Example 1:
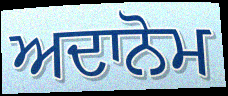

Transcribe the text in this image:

ਅਦਾਨੋਮ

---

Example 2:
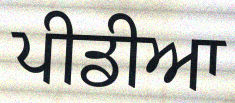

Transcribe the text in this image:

ਪੀਡੀਆ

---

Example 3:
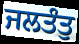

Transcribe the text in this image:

ਜਲਤੰਤੁ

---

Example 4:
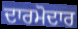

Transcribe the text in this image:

ਦਾਰਮੋਦਾਰ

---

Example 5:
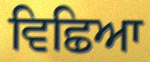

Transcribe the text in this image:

ਵਿਛਿਆ